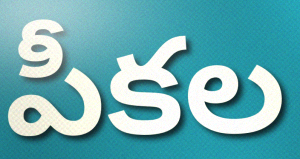
పీకల